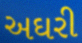
અઘરી